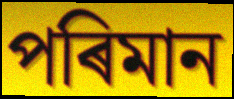
পৰিমান